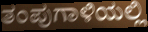
ತಂಪುಗಾಳಿಯಲ್ಲಿ